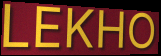
LEKHO